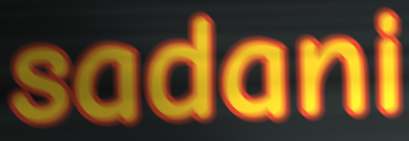
sadani